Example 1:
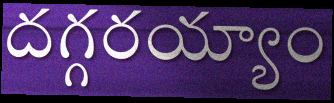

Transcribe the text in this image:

దగ్గరయ్యాం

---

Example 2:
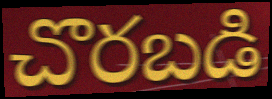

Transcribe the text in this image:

చొరబడి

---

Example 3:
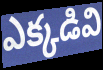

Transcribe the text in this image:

ఎక్కడివి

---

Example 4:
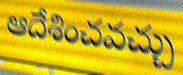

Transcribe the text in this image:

ఆదేశించవచ్చు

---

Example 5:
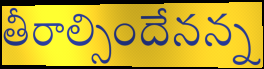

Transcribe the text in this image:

తీరాల్సిందేనన్న